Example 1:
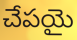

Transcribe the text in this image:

చేపయై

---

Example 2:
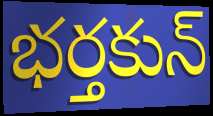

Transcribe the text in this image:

భర్తకున్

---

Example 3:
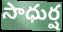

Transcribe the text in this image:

సాధుర్ష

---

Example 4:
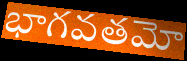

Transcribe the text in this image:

భాగవతమో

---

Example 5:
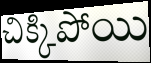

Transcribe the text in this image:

చిక్కిపోయి